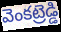
వెంకట్రెడ్డి